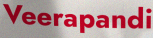
Veerapandi